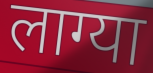
लाग्या